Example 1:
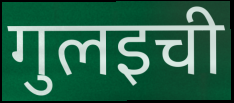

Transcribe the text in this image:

गुलइची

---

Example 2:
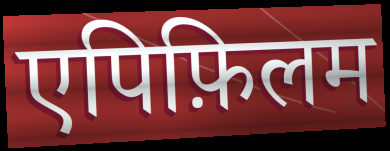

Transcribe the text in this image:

एपिफ़िलम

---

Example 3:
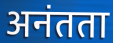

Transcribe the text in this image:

अनंतता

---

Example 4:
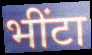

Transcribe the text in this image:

भींटा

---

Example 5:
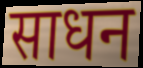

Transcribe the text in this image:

साधन